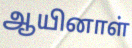
ஆயினாள்